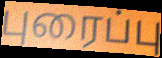
புரைப்பு